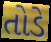
તોડે